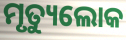
ମୃତ୍ୟୁଲୋକ